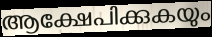
ആക്ഷേപിക്കുകയും